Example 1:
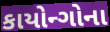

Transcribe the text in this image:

કાયોન્ગોના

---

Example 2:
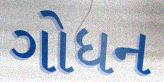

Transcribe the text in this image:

ગોધન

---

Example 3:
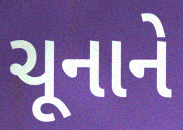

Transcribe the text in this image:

ચૂનાને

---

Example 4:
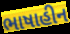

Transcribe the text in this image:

ભાષાહીન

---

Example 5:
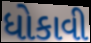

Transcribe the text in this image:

ધોકાવી